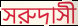
সরুদাসী